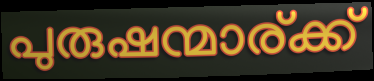
പുരുഷന്മാര്ക്ക്